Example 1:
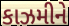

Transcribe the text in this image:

કાઝમીને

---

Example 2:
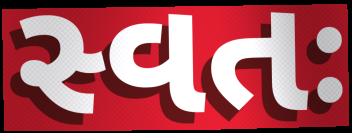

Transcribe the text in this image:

સ્વતઃ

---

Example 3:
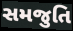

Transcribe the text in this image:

સમજુતિ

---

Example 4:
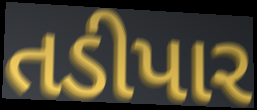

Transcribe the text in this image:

તડીપાર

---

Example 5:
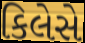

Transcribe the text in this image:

કિલેસે